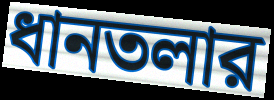
ধানতলার